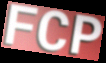
FCP